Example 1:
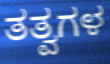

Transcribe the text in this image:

ತತ್ವಗಳ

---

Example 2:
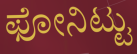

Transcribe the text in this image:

ಫೋನಿಟ್ಟು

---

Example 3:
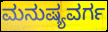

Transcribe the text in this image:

ಮನುಷ್ಯವರ್ಗ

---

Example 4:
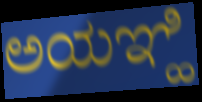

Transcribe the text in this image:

ಅಯಞ್ಹಿ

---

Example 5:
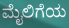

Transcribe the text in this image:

ಮೈಲಿಗೆಯ